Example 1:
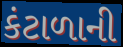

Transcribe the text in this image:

કંટાળાની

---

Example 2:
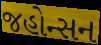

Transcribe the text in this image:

જહોન્સન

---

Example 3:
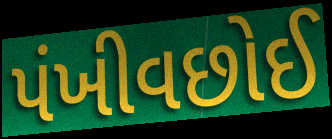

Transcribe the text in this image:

પંખીવછોઈ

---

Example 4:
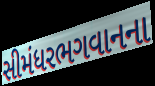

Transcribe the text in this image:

સીમંધરભગવાનના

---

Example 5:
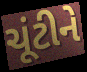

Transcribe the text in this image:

ચૂંટીને